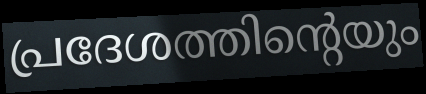
പ്രദേശത്തിന്റെയും